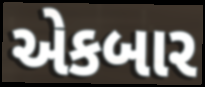
એકબાર